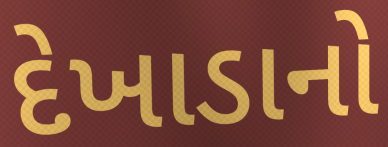
દેખાડાનો